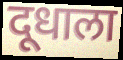
दूधाला